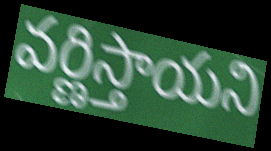
వర్ణిస్తాయని